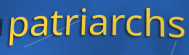
patriarchs